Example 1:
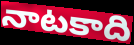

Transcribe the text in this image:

నాటకాది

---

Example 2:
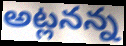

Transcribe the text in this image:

అట్లనన్న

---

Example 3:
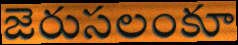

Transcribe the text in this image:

జెరుసలంకూ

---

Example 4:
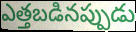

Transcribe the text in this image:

ఎత్తబడినప్పుడు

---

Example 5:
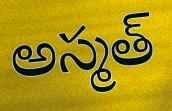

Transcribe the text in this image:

అస్మత్